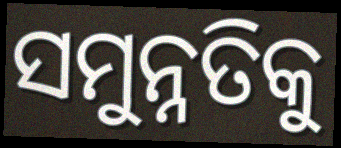
ସମୁନ୍ନତିକୁ